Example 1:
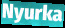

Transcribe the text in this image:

Nyurka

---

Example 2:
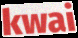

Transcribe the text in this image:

kwai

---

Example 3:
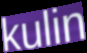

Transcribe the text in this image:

kulin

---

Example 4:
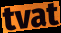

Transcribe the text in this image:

tvat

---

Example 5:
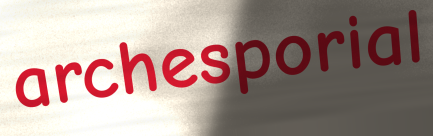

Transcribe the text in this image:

archesporial